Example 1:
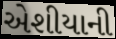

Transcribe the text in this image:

એશીયાની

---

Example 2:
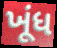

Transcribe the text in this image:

ખૂંધ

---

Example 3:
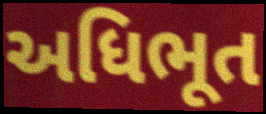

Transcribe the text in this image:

અધિભૂત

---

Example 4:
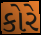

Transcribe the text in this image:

કોરે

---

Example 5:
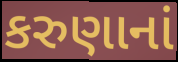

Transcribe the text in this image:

કરુણાનાં